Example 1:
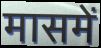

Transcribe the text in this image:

मासमें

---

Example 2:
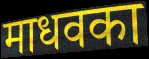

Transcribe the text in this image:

माधवका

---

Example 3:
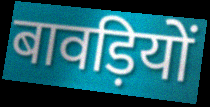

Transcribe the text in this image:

बावड़ियों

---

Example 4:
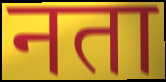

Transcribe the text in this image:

नता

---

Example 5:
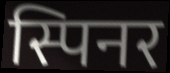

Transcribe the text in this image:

स्पिनर